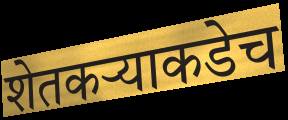
शेतकऱ्याकडेच